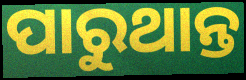
ପାରୁଥାନ୍ତ